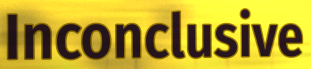
Inconclusive